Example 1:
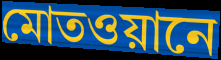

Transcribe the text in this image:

মোতওয়ানে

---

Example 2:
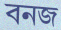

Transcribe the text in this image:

বনজ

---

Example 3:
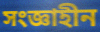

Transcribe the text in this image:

সংজ্ঞাহীন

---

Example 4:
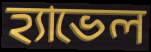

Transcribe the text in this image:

হ্যাভেল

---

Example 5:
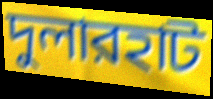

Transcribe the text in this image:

দুলারহাট